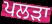
ਪਲੜਾ